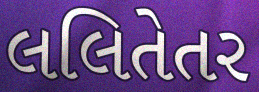
લલિતેતર